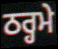
ਠਰ੍ਹਮੇ